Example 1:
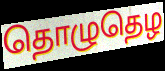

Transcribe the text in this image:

தொழுதெழ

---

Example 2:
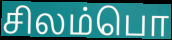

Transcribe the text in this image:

சிலம்பொ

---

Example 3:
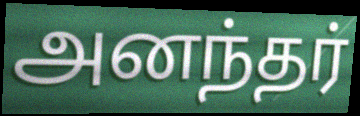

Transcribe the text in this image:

அனந்தர்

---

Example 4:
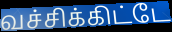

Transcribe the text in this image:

வச்சிக்கிட்டே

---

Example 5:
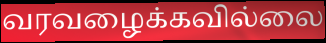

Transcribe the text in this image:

வரவழைக்கவில்லை